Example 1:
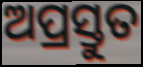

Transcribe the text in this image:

ଅପ୍ରସ୍ତୁତ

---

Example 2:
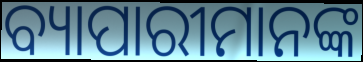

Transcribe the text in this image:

ବ୍ୟାପାରୀମାନଙ୍କ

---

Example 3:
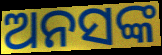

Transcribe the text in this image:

ଅନସଙ୍କ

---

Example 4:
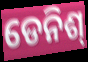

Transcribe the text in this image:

ଡେନିଶ୍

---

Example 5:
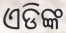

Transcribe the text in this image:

ଏଡିଙ୍କ